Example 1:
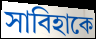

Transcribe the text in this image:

সাবিহাকে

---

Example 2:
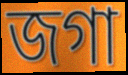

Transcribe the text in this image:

জগা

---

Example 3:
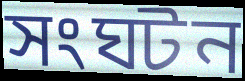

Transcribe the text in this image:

সংঘটন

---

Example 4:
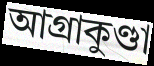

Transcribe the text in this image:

আগ্রাকুণ্ডা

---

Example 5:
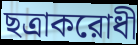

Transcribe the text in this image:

ছত্রাকরোধী